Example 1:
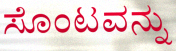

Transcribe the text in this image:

ಸೊಂಟವನ್ನು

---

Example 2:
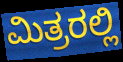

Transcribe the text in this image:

ಮಿತ್ರರಲ್ಲಿ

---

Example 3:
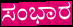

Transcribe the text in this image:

ಸಂಭಾರ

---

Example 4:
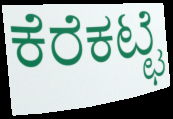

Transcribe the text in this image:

ಕೆರೆಕಟ್ಟೆ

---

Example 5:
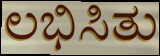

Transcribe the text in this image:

ಲಭಿಸಿತು